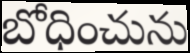
బోధించును